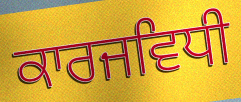
ਕਾਰਜਵਿਧੀ